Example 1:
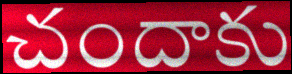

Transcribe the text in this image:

చందాకు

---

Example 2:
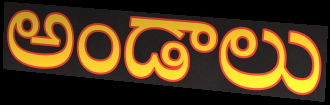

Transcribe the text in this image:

అండాలు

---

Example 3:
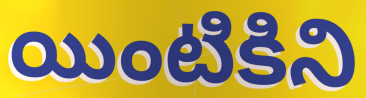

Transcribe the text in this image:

యింటికిని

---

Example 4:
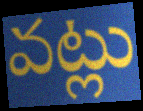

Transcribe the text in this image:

వట్లు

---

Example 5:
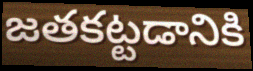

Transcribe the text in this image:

జతకట్టడానికి